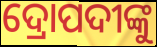
ଦ୍ରୋପଦୀଙ୍କୁ